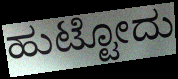
ಹುಟ್ಟೋದು